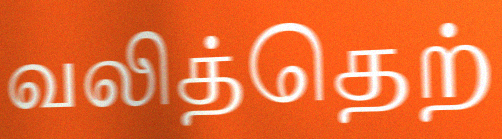
வலித்தெற்